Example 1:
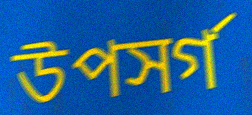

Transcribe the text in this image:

উপসর্গ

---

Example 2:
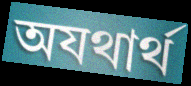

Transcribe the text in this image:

অযথার্থ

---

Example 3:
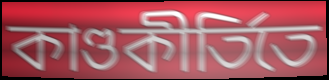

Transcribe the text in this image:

কাণ্ডকীর্তিতে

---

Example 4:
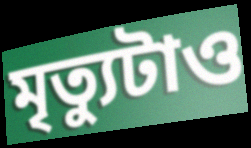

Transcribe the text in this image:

মৃত্যুটাও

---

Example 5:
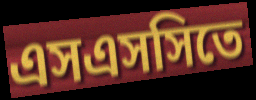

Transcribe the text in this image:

এসএসসিতে